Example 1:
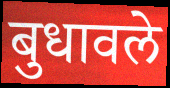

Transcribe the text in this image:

बुधावले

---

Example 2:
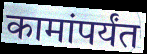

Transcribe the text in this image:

कामांपर्यंत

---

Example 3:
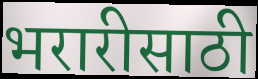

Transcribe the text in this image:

भरारीसाठी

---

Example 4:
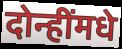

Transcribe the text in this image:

दोन्हींमधे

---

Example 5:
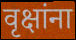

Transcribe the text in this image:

वृक्षांना